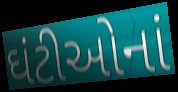
ઘંટીઓનાં